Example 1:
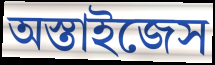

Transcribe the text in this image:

অস্তাইজেস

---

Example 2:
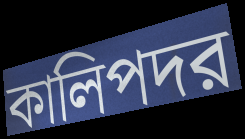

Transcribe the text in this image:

কালিপদর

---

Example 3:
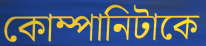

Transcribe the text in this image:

কোম্পানিটাকে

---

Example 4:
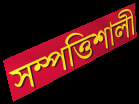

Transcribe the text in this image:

সম্পত্তিশালী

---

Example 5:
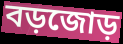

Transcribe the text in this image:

বড়জোড়